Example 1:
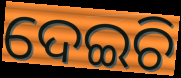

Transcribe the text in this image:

ଦେଇଚି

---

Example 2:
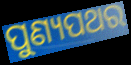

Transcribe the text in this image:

ପୁଣ୍ୟପଥର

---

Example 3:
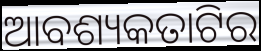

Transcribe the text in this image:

ଆବଶ୍ୟକତାଟିର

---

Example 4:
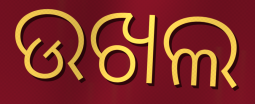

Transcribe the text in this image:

ଉଖଲ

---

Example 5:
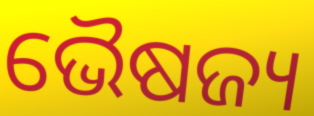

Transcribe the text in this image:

ଭୈଷଜ୍ୟ